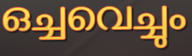
ഒച്ചവെച്ചും